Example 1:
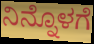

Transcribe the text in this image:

ನಿನ್ನೊಳಗೆ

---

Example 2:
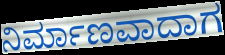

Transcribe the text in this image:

ನಿರ್ಮಾಣವಾದಾಗ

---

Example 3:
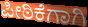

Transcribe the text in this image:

ಪೀಠಿಕೆಗಾಗಿ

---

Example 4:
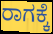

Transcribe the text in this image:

ರಾಗಕ್ಕೆ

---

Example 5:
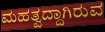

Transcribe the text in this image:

ಮಹತ್ವದ್ದಾಗಿರುವ